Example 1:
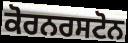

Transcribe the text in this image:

ਕੋਰਨਰਸਟੋਨ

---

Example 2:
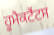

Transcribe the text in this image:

ਹੂਮੈਕਟੈਂਟਸ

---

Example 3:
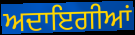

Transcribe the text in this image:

ਅਦਾਇਗੀਆਂ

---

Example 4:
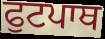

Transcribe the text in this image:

ਫੁਟਪਾਥ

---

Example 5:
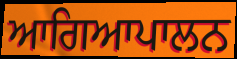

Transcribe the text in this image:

ਆਗਿਆਪਾਲਨ